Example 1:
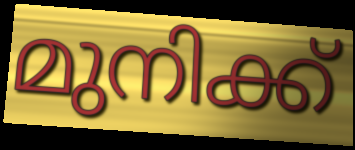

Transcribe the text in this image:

മുനിക്ക്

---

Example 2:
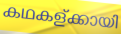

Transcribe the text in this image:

കഥകള്ക്കായി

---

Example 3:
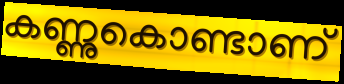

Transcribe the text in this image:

കണ്ണുകൊണ്ടാണ്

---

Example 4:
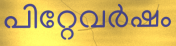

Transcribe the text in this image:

പിറ്റേവർഷം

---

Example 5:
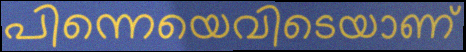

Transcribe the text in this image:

പിന്നെയെവിടെയാണ്